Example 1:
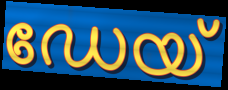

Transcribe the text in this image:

ഡേയ്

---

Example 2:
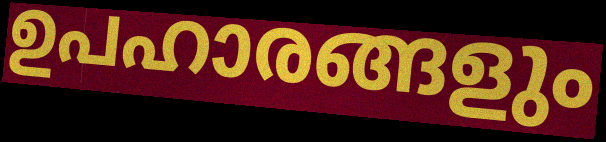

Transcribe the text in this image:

ഉപഹാരങ്ങളും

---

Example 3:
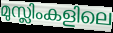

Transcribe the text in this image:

മുസ്ലിംകളിലെ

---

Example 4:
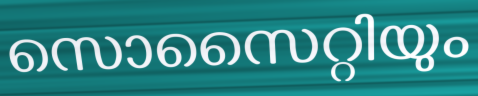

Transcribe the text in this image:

സൊസൈറ്റിയും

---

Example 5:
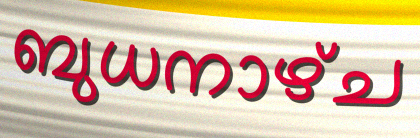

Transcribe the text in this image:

ബുധനാഴ്‌ച